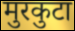
मुरकुटा